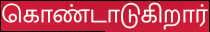
கொண்டாடுகிறார்